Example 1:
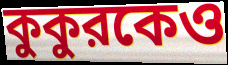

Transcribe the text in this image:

কুকুরকেও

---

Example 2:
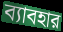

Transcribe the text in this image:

ব্যাবহার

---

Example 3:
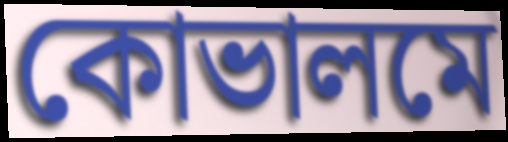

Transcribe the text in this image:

কোভালমে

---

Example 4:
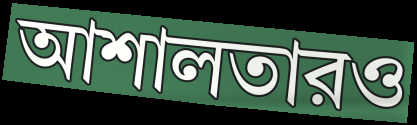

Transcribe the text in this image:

আশালতারও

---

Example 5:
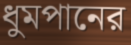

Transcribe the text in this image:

ধুমপানের